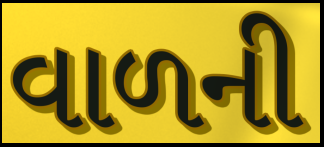
વાળની